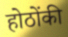
होठोंकी